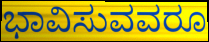
ಭಾವಿಸುವವರೂ